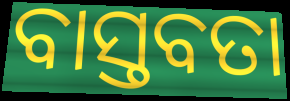
ବାସ୍ତବତା